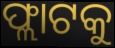
ଫ୍ଲାଟକୁ